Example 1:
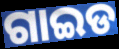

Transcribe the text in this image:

ଗାଇଡ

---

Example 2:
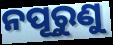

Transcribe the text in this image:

ନପୂରୁଣୁ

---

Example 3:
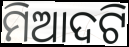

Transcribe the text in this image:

ମିଆଦଟି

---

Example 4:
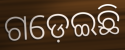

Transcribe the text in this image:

ଗଡ଼େଇଛି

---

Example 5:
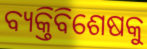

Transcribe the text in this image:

ବ୍ୟକ୍ତିବିଶେଷକୁ